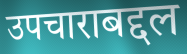
उपचाराबद्दल